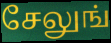
சேலுங்